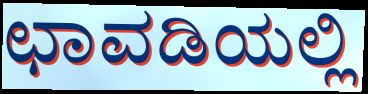
ಛಾವಡಿಯಲ್ಲಿ